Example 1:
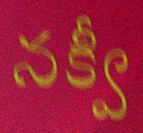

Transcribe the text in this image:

నక్వీ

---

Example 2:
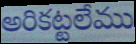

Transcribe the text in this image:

అరికట్టలేము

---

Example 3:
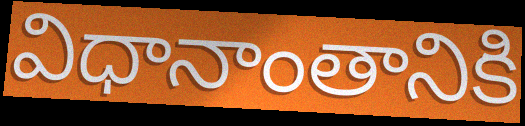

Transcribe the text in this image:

విధానాంతానికి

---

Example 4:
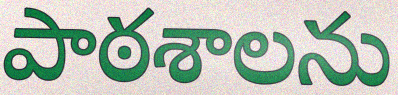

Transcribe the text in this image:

పాఠశాలను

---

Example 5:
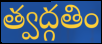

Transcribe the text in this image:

త్వద్గతిం